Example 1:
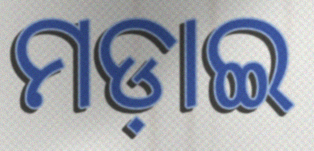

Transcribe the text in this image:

ମଡ଼ାଇ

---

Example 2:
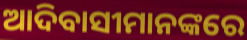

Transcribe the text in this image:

ଆଦିବାସୀମାନଙ୍କରେ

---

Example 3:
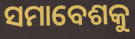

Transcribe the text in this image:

ସମାବେଶକୁ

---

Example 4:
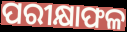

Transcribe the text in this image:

ପରୀକ୍ଷାଫଳ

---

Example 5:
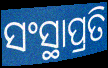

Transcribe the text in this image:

ସଂସ୍ଥାପ୍ରତି